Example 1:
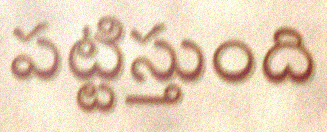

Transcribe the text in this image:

పట్టిస్తుంది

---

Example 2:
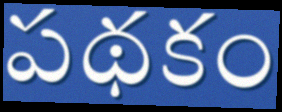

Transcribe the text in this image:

పథకం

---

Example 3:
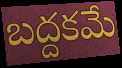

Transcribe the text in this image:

బద్దకమే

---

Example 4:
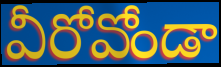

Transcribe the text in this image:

వీరోవోండా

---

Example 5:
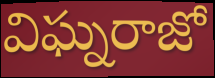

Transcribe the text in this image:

విఘ్నరాజో